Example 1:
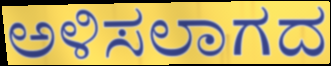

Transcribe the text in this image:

ಅಳಿಸಲಾಗದ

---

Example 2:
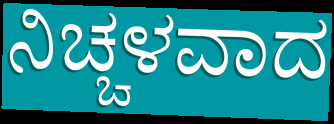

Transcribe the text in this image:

ನಿಚ್ಚಳವಾದ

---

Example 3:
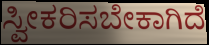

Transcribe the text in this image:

ಸ್ವೀಕರಿಸಬೇಕಾಗಿದೆ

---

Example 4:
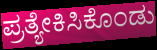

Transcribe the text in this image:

ಪ್ರತ್ಯೇಕಿಸಿಕೊಂಡು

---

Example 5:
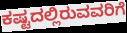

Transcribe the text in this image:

ಕಷ್ಟದಲ್ಲಿರುವವರಿಗೆ